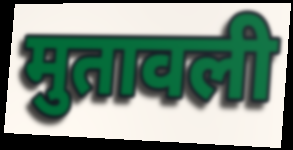
मुतावली